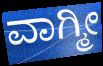
ವಾಗ್ಮೀ